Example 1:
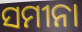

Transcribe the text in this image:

ସମୀନା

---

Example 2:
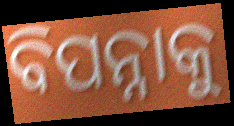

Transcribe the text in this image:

ବିପନ୍ନାକୁ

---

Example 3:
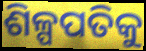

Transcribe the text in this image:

ଶିଳ୍ପପତିକୁ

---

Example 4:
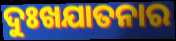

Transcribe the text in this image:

ଦୁଃଖଯାତନାର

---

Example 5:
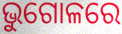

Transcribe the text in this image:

ଭୁଗୋଳରେ